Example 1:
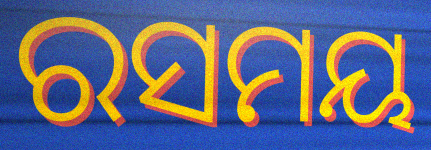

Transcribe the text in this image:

ରସମୟ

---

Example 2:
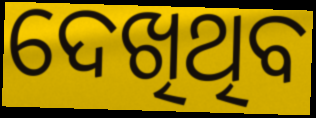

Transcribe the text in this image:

ଦେଖିଥିବ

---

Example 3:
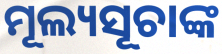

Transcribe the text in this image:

ମୂଲ୍ୟସୂଚାଙ୍କ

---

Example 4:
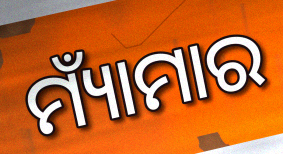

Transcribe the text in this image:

ମ୍ୟାଁମାର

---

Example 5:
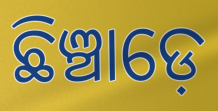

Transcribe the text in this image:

ଛିଞ୍ଚାଡ଼େ